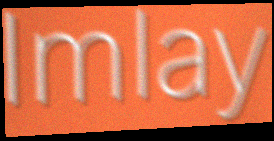
Imlay